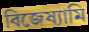
বিজেষ্যামি